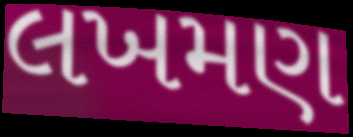
લખમણ